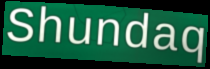
Shundaq